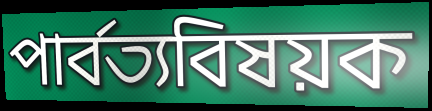
পার্বত্যবিষয়ক